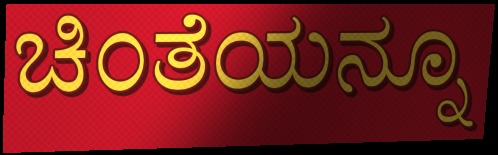
ಚಿಂತೆಯನ್ನೂ